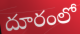
దూరంలో